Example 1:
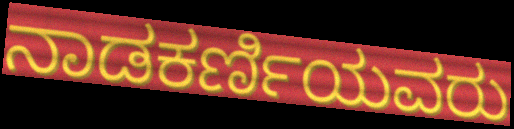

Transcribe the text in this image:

ನಾಡಕರ್ಣಿಯವರು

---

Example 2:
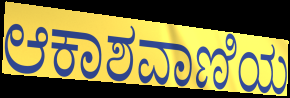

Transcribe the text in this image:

ಆಕಾಶವಾಣಿಯ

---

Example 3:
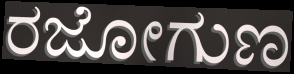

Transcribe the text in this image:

ರಜೋಗುಣ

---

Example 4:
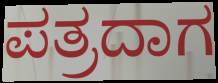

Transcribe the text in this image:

ಪತ್ರದಾಗ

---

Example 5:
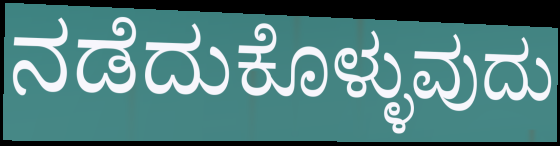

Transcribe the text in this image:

ನಡೆದುಕೊಳ್ಳುವುದು